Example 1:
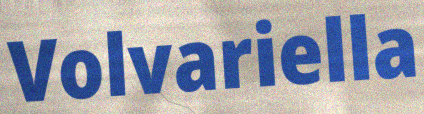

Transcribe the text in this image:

Volvariella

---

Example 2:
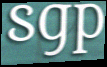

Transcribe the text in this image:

sgp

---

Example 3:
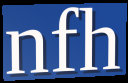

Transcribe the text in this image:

nfh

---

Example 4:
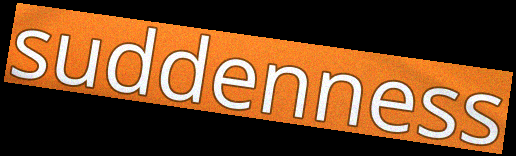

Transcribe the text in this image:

suddenness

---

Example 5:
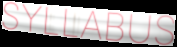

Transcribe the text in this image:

SYLLABUS